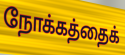
நோக்கத்தைக்